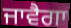
ਜਾਵੈਗਾ